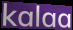
kalaa